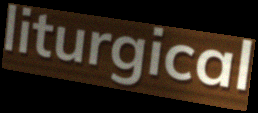
liturgical